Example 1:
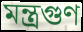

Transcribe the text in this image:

মন্ত্রগুণ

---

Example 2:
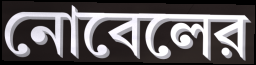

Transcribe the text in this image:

নোবেলের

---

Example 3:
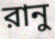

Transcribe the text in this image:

রানু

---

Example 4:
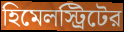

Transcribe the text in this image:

হিমেলস্ট্রিটের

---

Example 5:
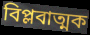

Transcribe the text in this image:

বিপ্লবাত্মক